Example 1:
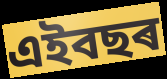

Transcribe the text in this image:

এইবছৰ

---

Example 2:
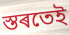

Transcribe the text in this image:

স্তৰতেই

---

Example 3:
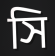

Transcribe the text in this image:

সি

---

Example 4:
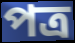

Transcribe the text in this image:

পত্ৰ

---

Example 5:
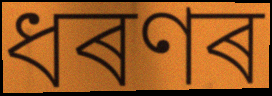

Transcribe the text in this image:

ধৰণৰ